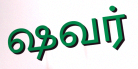
ஷவர்